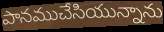
పానముచేసియున్నాను